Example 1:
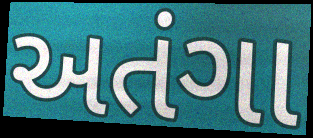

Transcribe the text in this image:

અતંગા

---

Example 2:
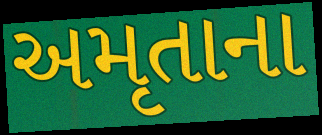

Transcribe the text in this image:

અમૃતાના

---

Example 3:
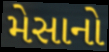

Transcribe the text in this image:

મેસાનો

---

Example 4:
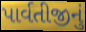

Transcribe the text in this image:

પાર્વતીજીનું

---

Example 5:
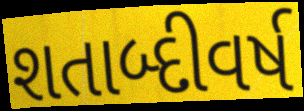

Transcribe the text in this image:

શતાબ્દીવર્ષ